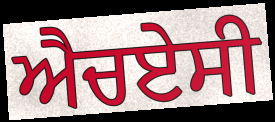
ਐਚਏਸੀ